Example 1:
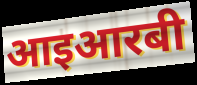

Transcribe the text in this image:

आइआरबी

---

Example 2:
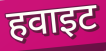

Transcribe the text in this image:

हवाइट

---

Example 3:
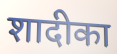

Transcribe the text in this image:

शादीका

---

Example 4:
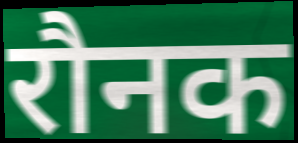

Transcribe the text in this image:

रौनक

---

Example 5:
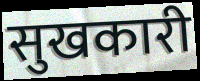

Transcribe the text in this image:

सुखकारी